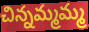
చిన్నమ్మమ్మ